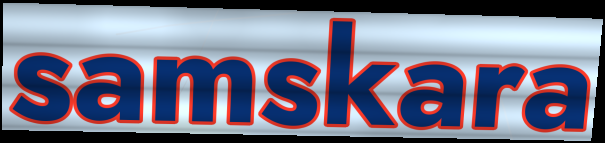
samskara